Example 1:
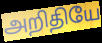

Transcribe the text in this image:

அறிதியே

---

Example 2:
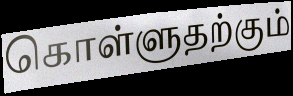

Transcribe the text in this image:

கொள்ளுதற்கும்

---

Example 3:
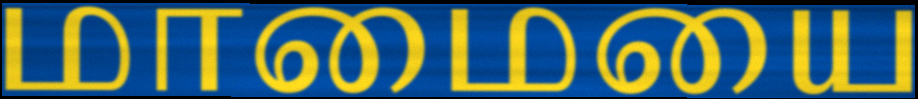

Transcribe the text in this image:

மாமையை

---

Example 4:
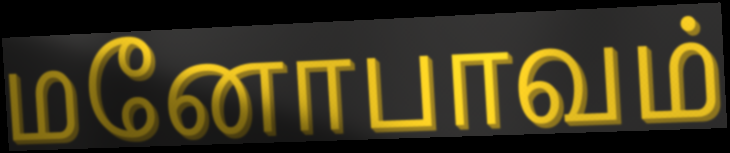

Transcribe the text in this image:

மனோபாவம்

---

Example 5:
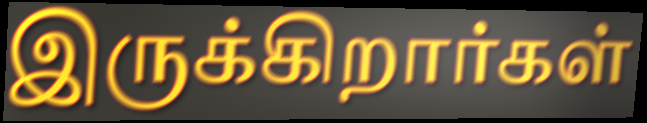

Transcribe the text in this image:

இருக்கிறார்கள்